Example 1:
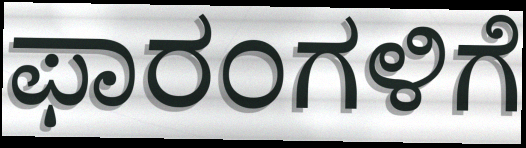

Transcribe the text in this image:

ಫಾರಂಗಳಿಗೆ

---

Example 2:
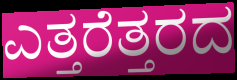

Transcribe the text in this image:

ಎತ್ತರೆತ್ತರದ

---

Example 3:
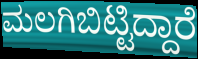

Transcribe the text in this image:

ಮಲಗಿಬಿಟ್ಟಿದ್ದಾರೆ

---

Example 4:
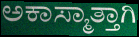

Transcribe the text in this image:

ಅಕಾಸ್ಮಾತ್ತಾಗಿ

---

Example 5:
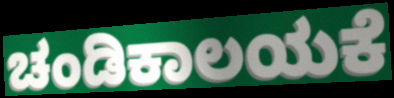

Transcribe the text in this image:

ಚಂಡಿಕಾಲಯಕೆ